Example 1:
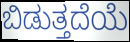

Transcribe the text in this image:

ಬಿಡುತ್ತದೆಯೆ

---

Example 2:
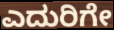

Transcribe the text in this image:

ಎದುರಿಗೇ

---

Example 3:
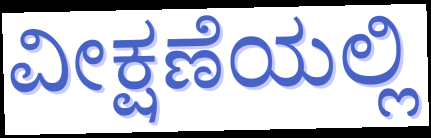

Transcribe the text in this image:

ವೀಕ್ಷಣೆಯಲ್ಲಿ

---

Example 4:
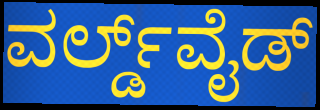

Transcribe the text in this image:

ವರ್ಲ್ಡ್‌ವೈಡ್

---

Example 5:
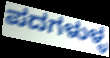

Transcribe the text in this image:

ಪದಗಳುಳ್ಳ